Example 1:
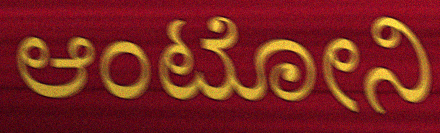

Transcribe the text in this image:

ಆಂಟೋನಿ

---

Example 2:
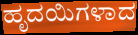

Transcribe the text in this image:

ಹೃದಯಿಗಳಾದ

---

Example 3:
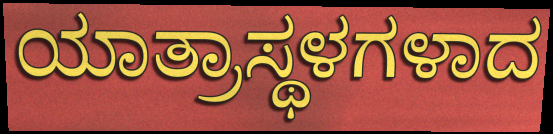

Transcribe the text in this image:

ಯಾತ್ರಾಸ್ಥಳಗಳಾದ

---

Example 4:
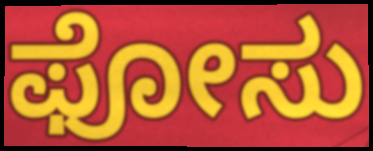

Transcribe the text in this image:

ಫೋಸು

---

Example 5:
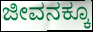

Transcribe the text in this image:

ಜೀವನಕ್ಕೂ